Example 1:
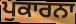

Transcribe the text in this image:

ਪੁਕਾਰਨਾ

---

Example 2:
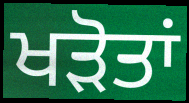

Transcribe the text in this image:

ਖੜੋਤਾਂ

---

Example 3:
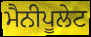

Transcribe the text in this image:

ਮੈਨੀਪੂਲੇਟ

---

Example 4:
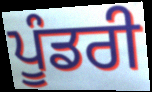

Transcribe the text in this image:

ਪੂੰਡਰੀ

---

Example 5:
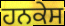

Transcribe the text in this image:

ਹਨਕੇਸ